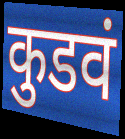
कुडवं